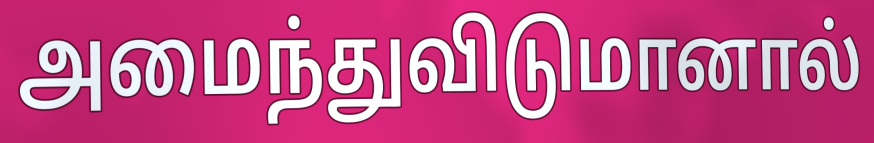
அமைந்துவிடுமானால்